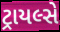
ટ્રાયલ્સે